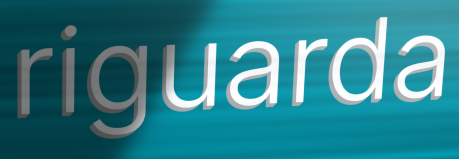
riguarda